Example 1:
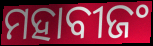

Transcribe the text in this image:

ମହାବୀଜଂ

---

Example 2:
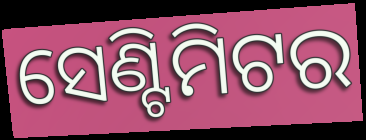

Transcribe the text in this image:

ସେଣ୍ଟିମିଟର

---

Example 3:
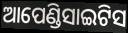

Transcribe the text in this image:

ଆପେଣ୍ଡିସାଇଟିସ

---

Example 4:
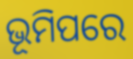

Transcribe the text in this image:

ଭୂମିପରେ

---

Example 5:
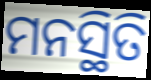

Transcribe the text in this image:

ମନସ୍ଥିତି